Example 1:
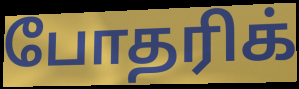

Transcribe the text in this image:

போதரிக்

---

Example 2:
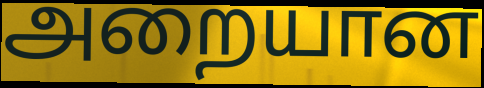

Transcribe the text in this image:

அறையான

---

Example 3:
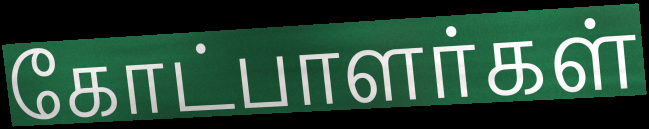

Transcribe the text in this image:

கோட்பாளர்கள்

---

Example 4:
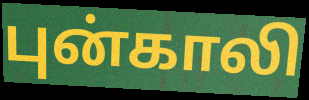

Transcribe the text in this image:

புன்காலி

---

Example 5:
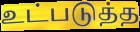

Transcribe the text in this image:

உட்படுத்த